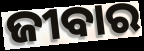
ଜୀବାର